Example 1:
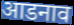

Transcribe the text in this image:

आडनाव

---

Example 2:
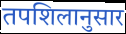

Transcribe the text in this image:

तपशिलानुसार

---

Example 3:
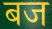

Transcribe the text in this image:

बज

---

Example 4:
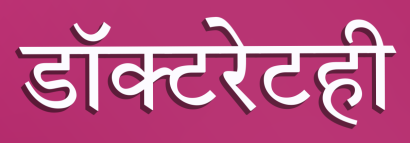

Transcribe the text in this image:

डॉक्‍टरेटही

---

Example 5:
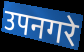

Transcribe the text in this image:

उपनगरे